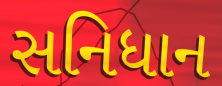
સનિધાન